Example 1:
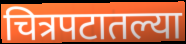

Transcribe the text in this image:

चित्रपटातल्या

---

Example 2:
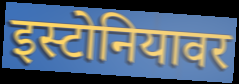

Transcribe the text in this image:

इस्टोनियावर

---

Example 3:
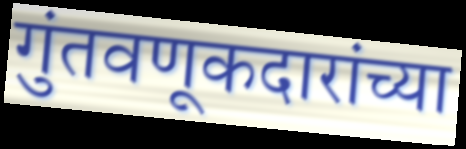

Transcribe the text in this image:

गुंतवणूकदारांच्या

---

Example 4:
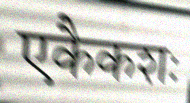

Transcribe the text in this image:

एकैकशः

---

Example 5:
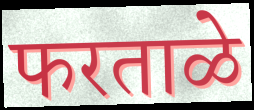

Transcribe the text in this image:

फरताळे